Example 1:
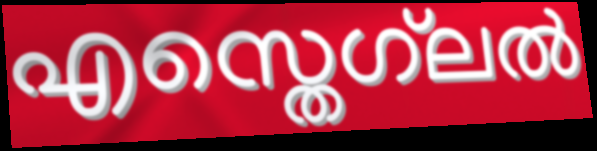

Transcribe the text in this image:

എസ്തെഗ്‌ലൽ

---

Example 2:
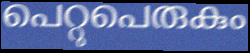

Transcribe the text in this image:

പെറ്റുപെരുകും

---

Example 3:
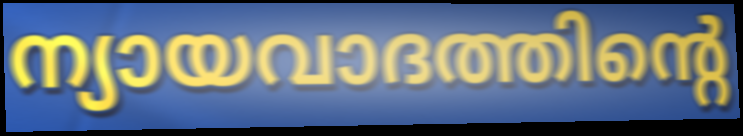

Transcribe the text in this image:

ന്യായവാദത്തിന്റെ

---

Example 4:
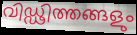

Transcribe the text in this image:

വിഡ്ഢിത്തങ്ങളും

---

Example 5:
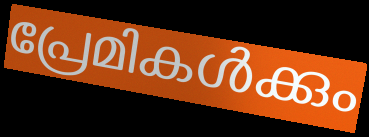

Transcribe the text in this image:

പ്രേമികൾക്കും